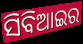
ସିବିଆଇର